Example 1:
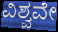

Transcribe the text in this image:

ವಿಶ್ವವೇ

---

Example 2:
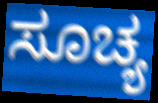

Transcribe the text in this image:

ಸೂಚ್ಯ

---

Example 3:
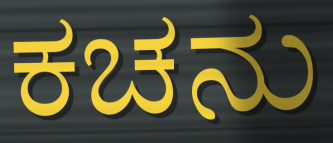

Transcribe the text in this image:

ಕಚನು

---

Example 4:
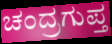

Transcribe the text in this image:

ಚಂದ್ರಗುಪ್ತ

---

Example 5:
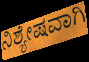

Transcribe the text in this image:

ನಿಶ್ಯೇಷವಾಗಿ